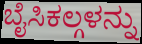
ಬೈಸಿಕಲ್ಗಳನ್ನು